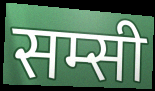
सम्सी